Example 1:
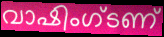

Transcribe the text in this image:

വാഷിംഗ്ടണ്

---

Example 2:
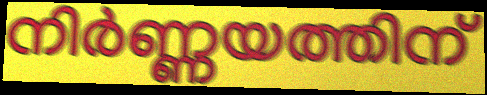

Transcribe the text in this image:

നിർണ്ണയത്തിന്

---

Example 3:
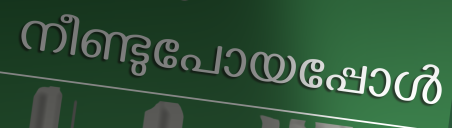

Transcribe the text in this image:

നീണ്ടുപോയപ്പോൾ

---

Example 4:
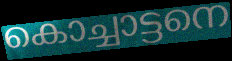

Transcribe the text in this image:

കൊച്ചാട്ടനെ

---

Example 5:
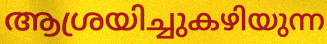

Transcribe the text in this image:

ആശ്രയിച്ചുകഴിയുന്ന